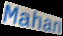
Mahan